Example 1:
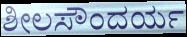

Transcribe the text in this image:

ಶೀಲಸೌಂದರ್ಯ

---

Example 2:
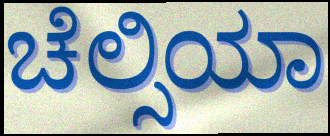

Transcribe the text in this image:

ಚೆಲ್ಸಿಯಾ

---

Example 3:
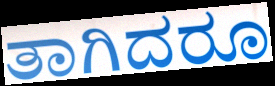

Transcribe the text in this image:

ತಾಗಿದರೂ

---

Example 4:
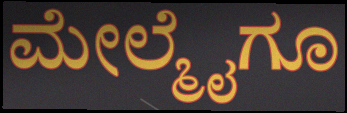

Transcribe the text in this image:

ಮೇಲ್ಮೈಗೂ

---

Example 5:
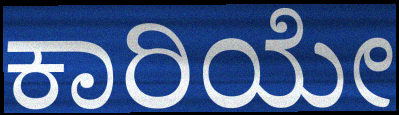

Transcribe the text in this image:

ಕಾರಿಯೇ